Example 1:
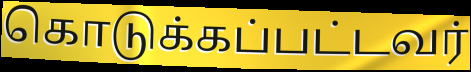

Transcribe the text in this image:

கொடுக்கப்பட்டவர்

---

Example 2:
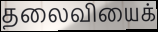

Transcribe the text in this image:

தலைவியைக்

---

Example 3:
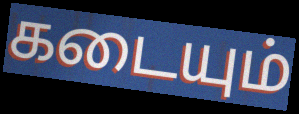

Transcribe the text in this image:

கடையும்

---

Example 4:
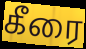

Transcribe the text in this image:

கீரை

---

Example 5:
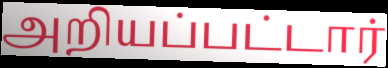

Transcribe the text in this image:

அறியப்பட்டார்